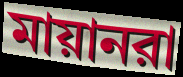
মায়ানরা